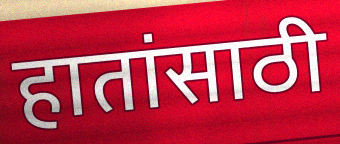
हातांसाठी